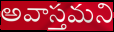
అవాస్తమని